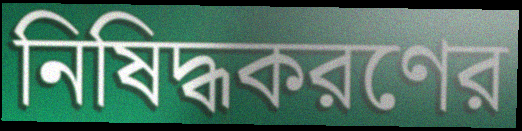
নিষিদ্ধকরণের